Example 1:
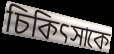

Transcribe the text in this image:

চিকিৎসাকে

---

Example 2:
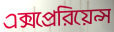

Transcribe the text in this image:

এক্সপ্রেরিয়েন্স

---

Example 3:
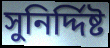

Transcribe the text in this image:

সুনির্দ্দিষ্ট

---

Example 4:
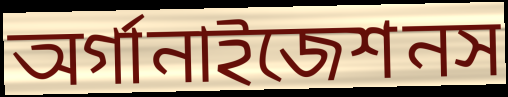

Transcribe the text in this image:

অর্গানাইজেশনস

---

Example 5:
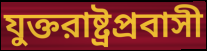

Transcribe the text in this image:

যুক্তরাষ্ট্রপ্রবাসী